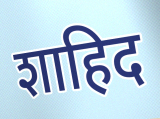
शाहिद